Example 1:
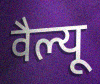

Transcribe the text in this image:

वैल्यू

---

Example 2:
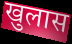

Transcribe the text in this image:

खुलास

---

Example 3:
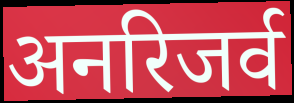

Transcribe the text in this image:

अनरिजर्व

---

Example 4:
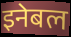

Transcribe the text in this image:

इनेबल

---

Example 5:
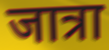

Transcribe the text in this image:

जात्रा